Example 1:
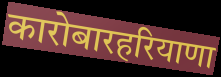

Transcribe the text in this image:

कारोबारहरियाणा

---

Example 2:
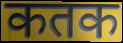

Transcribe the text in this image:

कतक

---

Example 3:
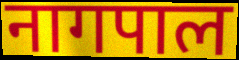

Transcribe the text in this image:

नागपाल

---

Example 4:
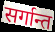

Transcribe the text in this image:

सर्गान्त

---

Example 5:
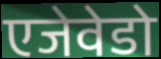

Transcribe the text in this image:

एजेवेडो